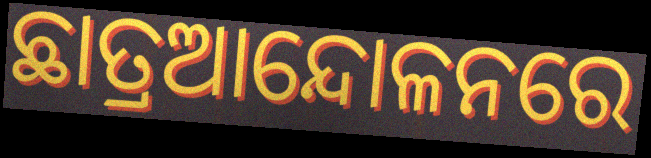
ଛାତ୍ରଆନ୍ଦୋଳନରେ